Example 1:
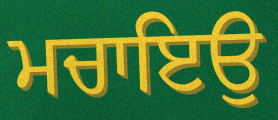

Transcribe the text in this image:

ਮਚਾਇਉ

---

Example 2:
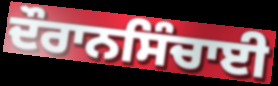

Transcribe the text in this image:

ਦੌਰਾਨਸਿੰਚਾਈ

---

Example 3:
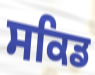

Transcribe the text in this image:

ਸਕਿਡ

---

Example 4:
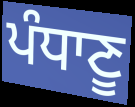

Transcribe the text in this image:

ਪੰਧਾਣੂ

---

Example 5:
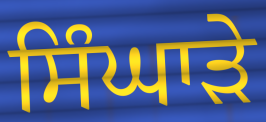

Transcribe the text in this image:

ਸਿੰਘਾੜੇ